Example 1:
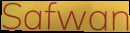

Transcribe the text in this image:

Safwan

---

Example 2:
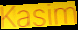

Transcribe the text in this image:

Kasim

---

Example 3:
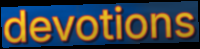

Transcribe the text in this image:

devotions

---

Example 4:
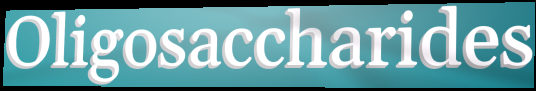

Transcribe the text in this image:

Oligosaccharides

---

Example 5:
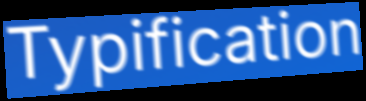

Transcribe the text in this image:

Typification